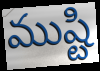
ముష్టి